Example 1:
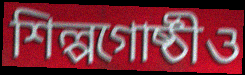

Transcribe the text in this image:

শিল্পগোষ্ঠীও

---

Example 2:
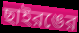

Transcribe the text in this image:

ছাইরঙের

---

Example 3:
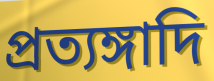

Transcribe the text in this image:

প্রত্যঙ্গাদি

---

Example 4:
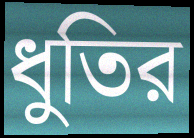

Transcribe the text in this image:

ধুতির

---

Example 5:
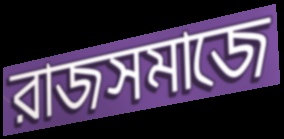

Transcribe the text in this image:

রাজসমাজে